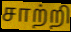
சாற்றி